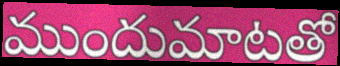
ముందుమాటతో